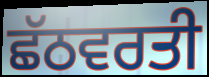
ਛੱਠਵਰਤੀ